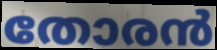
തോരൻ